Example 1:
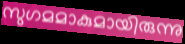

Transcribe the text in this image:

സുഗമമാകുമായിരുന്നു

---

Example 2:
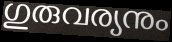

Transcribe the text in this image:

ഗുരുവര്യനും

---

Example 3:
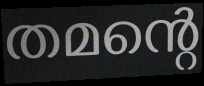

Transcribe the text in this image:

തമന്റെ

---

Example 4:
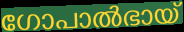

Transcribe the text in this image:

ഗോപാൽഭായ്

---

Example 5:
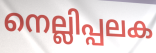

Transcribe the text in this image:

നെല്ലിപ്പലക